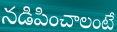
నడిపించాలంటే